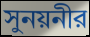
সুনয়নীর